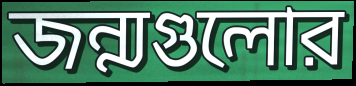
জন্মগুলোর